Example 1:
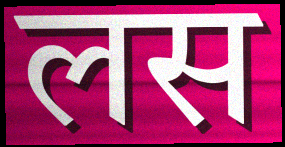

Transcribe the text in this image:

लस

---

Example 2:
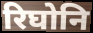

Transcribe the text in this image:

रिघोनि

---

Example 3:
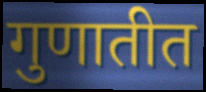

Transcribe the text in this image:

गुणातीत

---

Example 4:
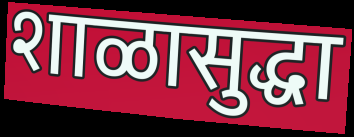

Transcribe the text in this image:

शाळासुद्धा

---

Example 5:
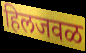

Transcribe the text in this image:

हिलजवळ